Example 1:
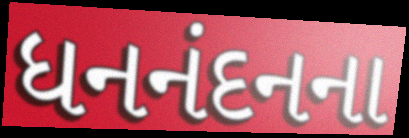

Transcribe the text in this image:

ધનનંદનના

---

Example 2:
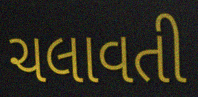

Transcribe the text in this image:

ચલાવતી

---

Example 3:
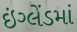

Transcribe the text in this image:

ઇંગ્લેંડમાં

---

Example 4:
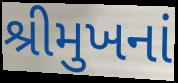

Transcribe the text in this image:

શ્રીમુખનાં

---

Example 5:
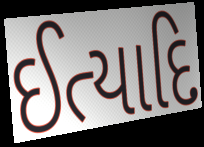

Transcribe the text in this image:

ઈત્યાદિ